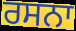
ਰਸਨਾ